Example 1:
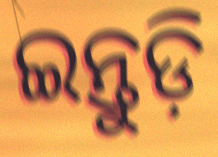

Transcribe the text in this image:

ଇନ୍ତୁଡ଼ି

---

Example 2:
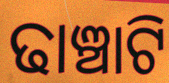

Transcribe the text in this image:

ଢାଞ୍ଚାଟି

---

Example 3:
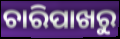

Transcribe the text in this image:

ଚାରିପାଖରୁ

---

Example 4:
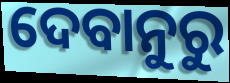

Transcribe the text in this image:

ଦେବାନୁରୁ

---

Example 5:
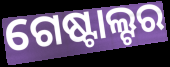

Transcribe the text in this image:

ଗେଷ୍ଟାଲ୍ଟର